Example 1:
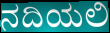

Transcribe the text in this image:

ನದಿಯಲಿ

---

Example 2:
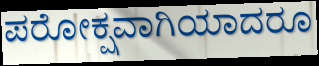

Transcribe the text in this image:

ಪರೋಕ್ಷವಾಗಿಯಾದರೂ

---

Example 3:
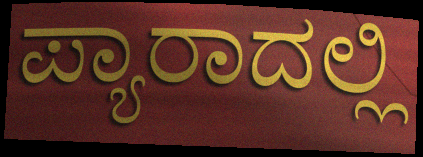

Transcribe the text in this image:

ಪ್ಯಾರಾದಲ್ಲಿ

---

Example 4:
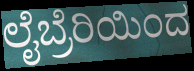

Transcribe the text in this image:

ಲೈಬ್ರೆರಿಯಿಂದ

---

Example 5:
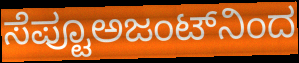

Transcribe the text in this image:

ಸೆಪ್ಟೂಅಜಂಟ್‌ನಿಂದ